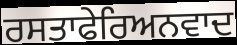
ਰਸਤਾਫੇਰਿਅਨਵਾਦ